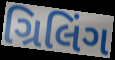
ગ્રિલિંગ